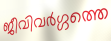
ജീവിവർഗ്ഗത്തെ